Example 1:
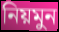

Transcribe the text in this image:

নিয়মুন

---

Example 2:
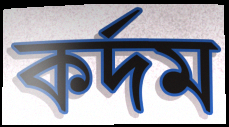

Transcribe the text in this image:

কর্দম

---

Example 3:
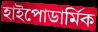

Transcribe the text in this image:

হাইপোডার্মিক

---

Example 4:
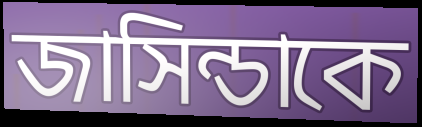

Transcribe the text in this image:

জাসিন্ডাকে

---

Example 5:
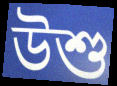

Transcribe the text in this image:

উশু